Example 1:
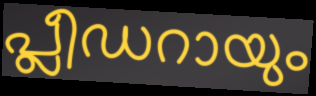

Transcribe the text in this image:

പ്ലീഡറായും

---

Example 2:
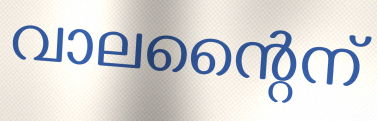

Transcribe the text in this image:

വാലന്റൈന്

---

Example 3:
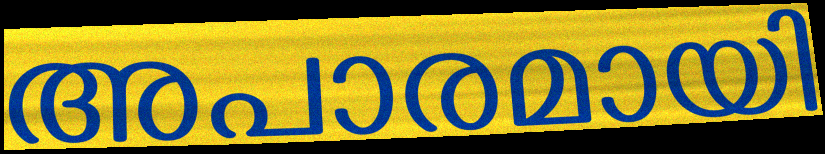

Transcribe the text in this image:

അപാരമായി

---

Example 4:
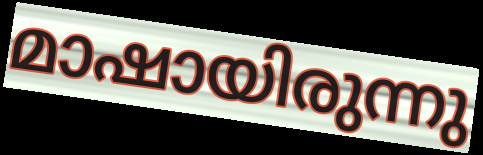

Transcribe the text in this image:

മാഷായിരുന്നു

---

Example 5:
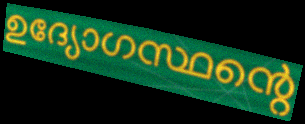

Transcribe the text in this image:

ഉദ്യോഗസ്ഥന്റെ